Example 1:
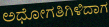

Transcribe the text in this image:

ಅಧೋಗತಿಗಿಳಿದಾಗ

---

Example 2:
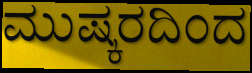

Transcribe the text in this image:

ಮುಷ್ಕರದಿಂದ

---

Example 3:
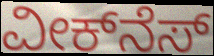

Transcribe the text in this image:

ವೀಕ್‌ನೆಸ್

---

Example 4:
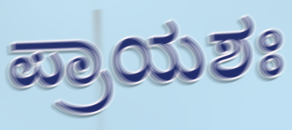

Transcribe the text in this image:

ಪ್ರಾಯಶಃ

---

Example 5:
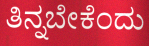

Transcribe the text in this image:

ತಿನ್ನಬೇಕೆಂದು